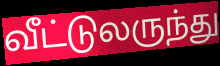
வீட்டுலருந்து